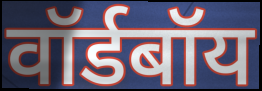
वॉर्डबॉय